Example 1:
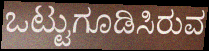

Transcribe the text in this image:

ಒಟ್ಟುಗೂಡಿಸಿರುವ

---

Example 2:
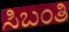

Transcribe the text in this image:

ಸಿಬಂತಿ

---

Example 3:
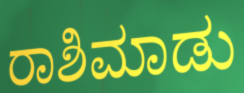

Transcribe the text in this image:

ರಾಶಿಮಾಡು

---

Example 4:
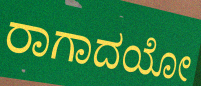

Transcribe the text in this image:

ರಾಗಾದಯೋ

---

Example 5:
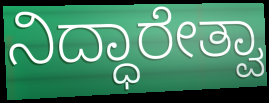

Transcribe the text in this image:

ನಿದ್ಧಾರೇತ್ವಾ